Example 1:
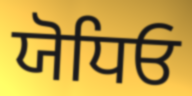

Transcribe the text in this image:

ਯੋਧਿਓ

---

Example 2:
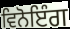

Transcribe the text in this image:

ਵਿਨੋਇੰਗ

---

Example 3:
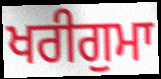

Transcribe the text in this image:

ਖਰੀਗੁਮਾ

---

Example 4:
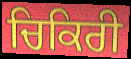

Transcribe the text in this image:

ਚਿਕਿਰੀ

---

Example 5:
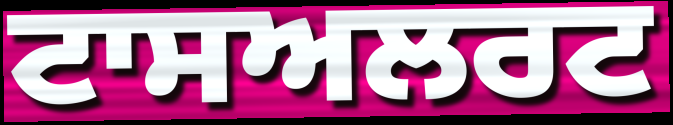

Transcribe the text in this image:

ਟਾਸਅਲਰਟ